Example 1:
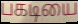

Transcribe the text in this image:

பகடியை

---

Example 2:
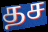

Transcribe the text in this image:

தச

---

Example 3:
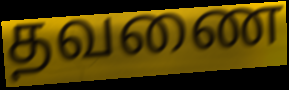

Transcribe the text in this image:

தவணை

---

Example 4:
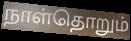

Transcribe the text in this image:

நாள்தொறும்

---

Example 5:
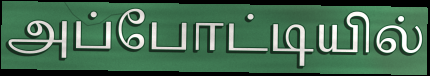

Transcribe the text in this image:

அப்போட்டியில்